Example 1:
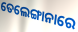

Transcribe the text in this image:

ତେଲେଙ୍ଗାନାରେ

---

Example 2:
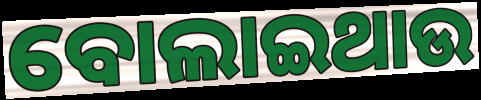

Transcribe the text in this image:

ବୋଲାଇଥାଉ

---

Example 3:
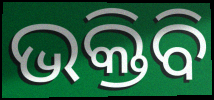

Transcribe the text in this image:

ଭକ୍ତିବି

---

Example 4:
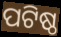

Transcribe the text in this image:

ପଟିଷ୍ଠ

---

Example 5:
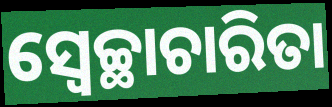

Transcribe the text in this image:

ସ୍ୱେଚ୍ଛାଚାରିତା